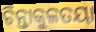
ଚିନ୍ତାକୁଳତୟା